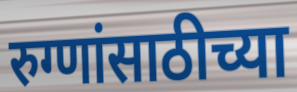
रुग्णांसाठीच्या